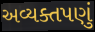
અવ્યક્તપણું